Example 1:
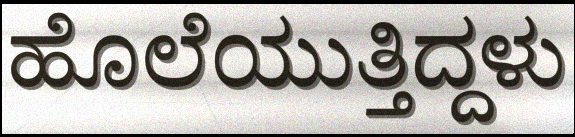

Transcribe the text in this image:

ಹೊಲೆಯುತ್ತಿದ್ದಳು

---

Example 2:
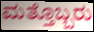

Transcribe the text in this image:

ಮತ್ತೊಬ್ಬರು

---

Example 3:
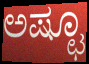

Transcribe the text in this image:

ಅಷ್ಟೂ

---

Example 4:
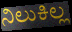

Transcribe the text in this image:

ನಿಲುಕಿಲ್ಲ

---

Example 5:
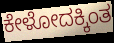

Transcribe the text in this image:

ಕೇಳೋದಕ್ಕಿಂತ